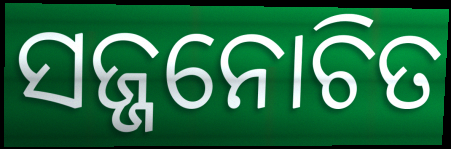
ସଜ୍ଜନୋଚିତ